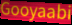
Gooyaabi